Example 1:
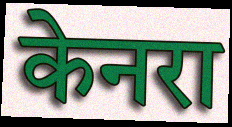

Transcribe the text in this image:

केनरा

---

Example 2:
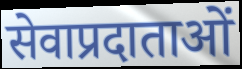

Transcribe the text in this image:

सेवाप्रदाताओं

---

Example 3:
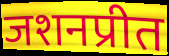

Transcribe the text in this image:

जशनप्रीत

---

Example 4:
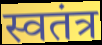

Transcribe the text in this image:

स्वतंत्र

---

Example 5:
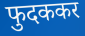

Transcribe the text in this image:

फुदककर